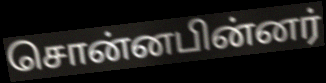
சொன்னபின்னர்